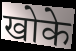
खोके